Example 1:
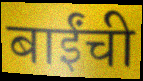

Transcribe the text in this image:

बाईंची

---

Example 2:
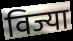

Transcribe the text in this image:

विज्या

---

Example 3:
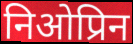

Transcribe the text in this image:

निओप्रिन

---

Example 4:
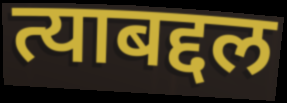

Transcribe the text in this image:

त्याबद्दल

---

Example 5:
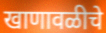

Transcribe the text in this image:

खाणावळीचे